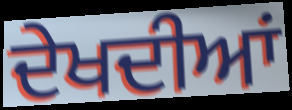
ਦੇਖਦੀਆਂ